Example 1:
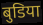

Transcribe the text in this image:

बुडिया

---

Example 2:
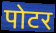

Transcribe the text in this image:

पोटर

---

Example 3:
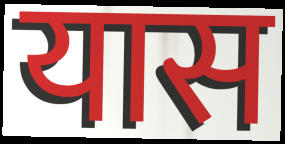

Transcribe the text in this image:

यास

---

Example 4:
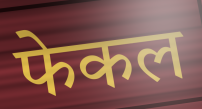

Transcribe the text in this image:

फेकल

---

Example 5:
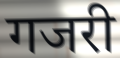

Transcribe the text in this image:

गजरी